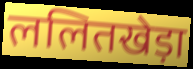
ललितखेड़ा